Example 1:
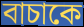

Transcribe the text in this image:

বাচাকে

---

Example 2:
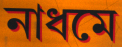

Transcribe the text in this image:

নাধমে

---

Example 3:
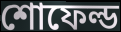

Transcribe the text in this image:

শোফেল্ড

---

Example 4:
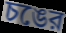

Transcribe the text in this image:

চঙের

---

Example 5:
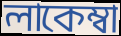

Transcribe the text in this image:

লাকেম্বা